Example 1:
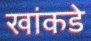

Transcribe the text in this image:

खांकडे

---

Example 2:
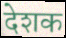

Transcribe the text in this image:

देशक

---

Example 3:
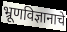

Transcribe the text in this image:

भ्रूणविज्ञानाचे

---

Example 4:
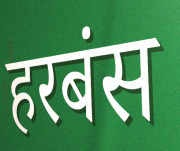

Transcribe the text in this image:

हरबंस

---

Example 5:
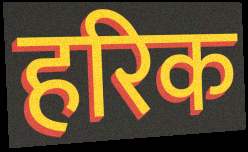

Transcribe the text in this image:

हरिक